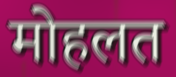
मोहलत